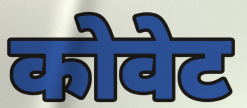
कोवेट